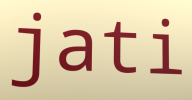
jati